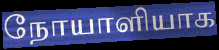
நோயாளியாக